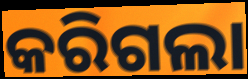
କରିଗଲା